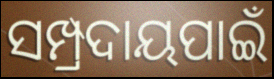
ସମ୍ପ୍ରଦାୟପାଇଁ